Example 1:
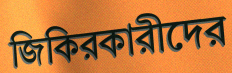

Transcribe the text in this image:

জিকিরকারীদের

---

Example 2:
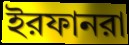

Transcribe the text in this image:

ইরফানরা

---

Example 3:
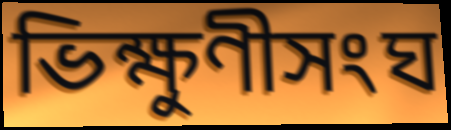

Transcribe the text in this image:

ভিক্ষুণীসংঘ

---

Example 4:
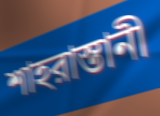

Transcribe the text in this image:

শাহরাস্তানী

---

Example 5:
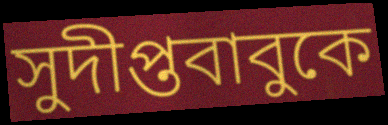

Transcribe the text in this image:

সুদীপ্তবাবুকে